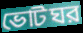
ভোটঘর